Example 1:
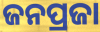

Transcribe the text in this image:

ଜନପ୍ରଜା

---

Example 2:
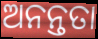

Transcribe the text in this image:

ଅନନ୍ତତା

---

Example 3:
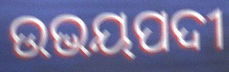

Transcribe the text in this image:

ଉଭୟପଦୀ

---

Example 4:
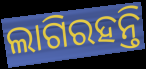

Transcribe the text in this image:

ଲାଗିରହନ୍ତି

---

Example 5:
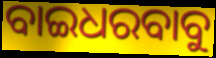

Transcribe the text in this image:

ବାଇଧରବାବୁ